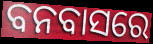
ବନବାସରେ